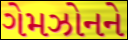
ગેમઝોનને